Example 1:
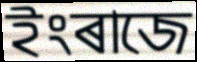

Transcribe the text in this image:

ইংৰাজে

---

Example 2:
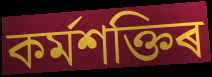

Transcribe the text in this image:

কৰ্মশক্তিৰ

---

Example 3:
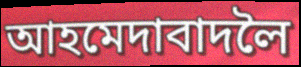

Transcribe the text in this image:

আহমেদাবাদলৈ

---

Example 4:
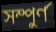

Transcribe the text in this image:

সম্পুৰ্ণ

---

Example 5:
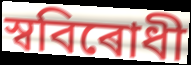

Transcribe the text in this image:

স্ববিৰোধী